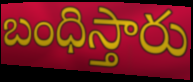
బంధిస్తారు